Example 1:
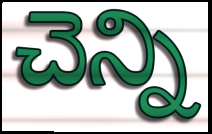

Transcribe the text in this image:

చెన్ని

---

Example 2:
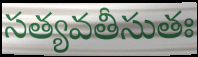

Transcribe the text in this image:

సత్యవతీసుతః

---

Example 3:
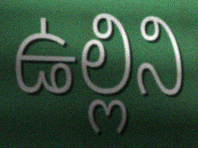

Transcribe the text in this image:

ఉల్లిని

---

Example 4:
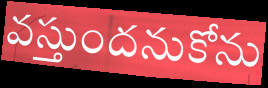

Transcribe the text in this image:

వస్తుందనుకోను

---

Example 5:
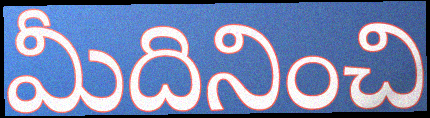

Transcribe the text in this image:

మీదినించి